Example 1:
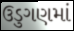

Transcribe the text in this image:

ઉડુગણમાં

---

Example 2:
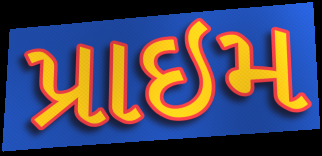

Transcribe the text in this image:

પ્રાઇમ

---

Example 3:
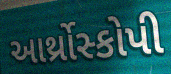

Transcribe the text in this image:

આર્થ્રોસ્કોપી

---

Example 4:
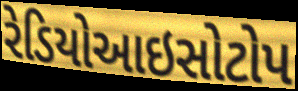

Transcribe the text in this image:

રેડિયોઆઇસોટોપ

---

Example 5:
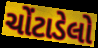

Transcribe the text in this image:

ચોંટાડેલો